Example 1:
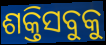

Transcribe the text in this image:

ଶକ୍ତିସବୁକୁ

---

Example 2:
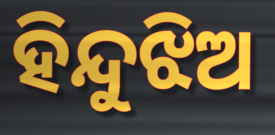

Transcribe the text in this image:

ହିନ୍ଦୁଝିଅ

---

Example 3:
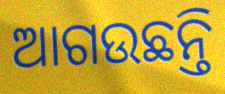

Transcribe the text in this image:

ଆଗଉଛନ୍ତି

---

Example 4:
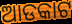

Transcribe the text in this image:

ଆଡକାଟ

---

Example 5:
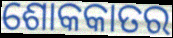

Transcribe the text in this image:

ଶୋକକାତର